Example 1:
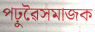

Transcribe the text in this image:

পঢ়ুৱৈসমাজক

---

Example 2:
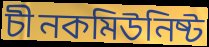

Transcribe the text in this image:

চীনকমিউনিষ্ট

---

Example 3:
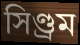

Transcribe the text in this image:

সিণ্ড্ৰম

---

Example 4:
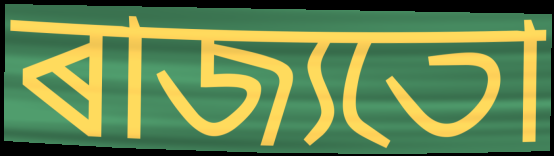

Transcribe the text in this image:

ৰাজ্যতো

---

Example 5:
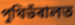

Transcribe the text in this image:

পুথিভঁৰালত